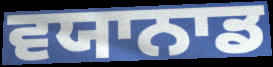
ਵਯਾਨਾਡ